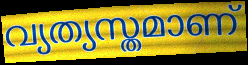
വ്യത്യസ്തമാണ്